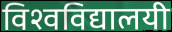
विश्वविद्यालयी